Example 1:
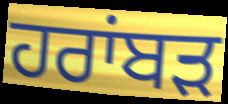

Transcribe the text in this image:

ਹਰਾਂਬੜ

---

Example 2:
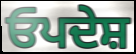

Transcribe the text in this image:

ਓਪਦੇਸ਼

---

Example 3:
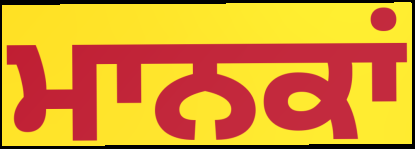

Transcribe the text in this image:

ਮਾਨਕਾਂ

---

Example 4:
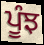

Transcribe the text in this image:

ਪੂੰਝ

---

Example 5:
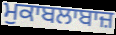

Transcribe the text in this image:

ਮੁਕਾਬਲਾਬਾਜ਼